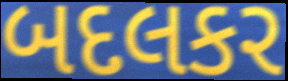
બદલકર